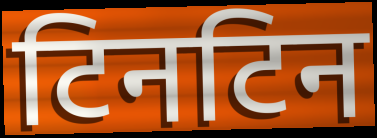
टिनटिन